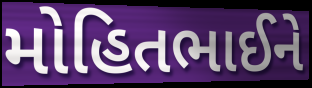
મોહિતભાઈને